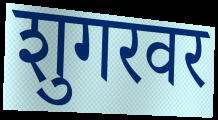
शुगरवर